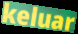
keluar